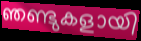
ഞണ്ടുകളായി